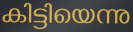
കിട്ടിയെന്നു